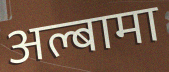
अल्बामा